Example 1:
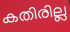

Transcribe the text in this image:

കതിരില്ല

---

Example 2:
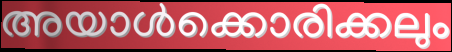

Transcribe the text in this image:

അയാൾക്കൊരിക്കലും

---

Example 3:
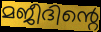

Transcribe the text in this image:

മജീദിന്റെ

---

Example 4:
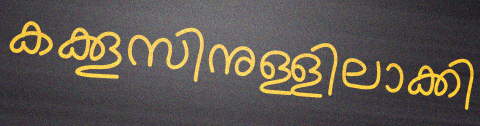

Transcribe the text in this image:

കക്കൂസിനുള്ളിലാക്കി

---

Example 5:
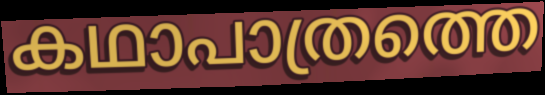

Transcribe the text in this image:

കഥാപാത്രത്തെ